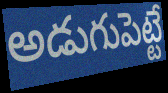
అడుగుపెట్టే